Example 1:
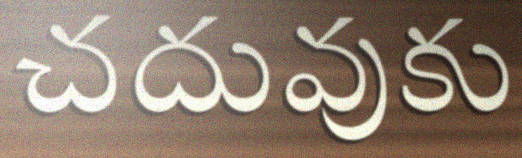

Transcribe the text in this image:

చదువుకు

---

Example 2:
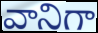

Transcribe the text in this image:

వానిగా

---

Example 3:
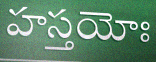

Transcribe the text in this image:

హస్తయోః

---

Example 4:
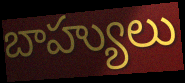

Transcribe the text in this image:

బాహ్యులు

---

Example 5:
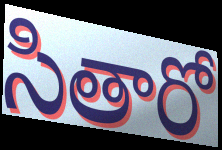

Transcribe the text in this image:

సితారో